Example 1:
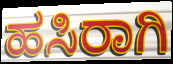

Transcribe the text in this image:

ಹಸಿರಾಗಿ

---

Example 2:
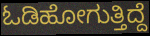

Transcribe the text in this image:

ಓಡಿಹೋಗುತ್ತಿದ್ದೆ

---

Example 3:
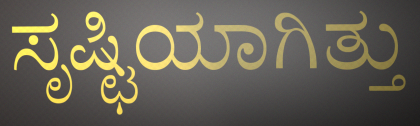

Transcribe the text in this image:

ಸೃಷ್ಟಿಯಾಗಿತ್ತು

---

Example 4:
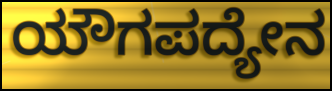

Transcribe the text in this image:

ಯೌಗಪದ್ಯೇನ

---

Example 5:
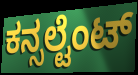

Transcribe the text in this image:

ಕನ್ಸಲ್ಟೆಂಟ್